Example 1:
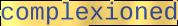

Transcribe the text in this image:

complexioned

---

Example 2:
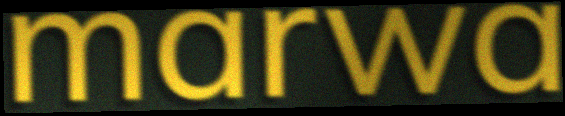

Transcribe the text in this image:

marwa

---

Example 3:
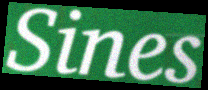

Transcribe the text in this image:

Sines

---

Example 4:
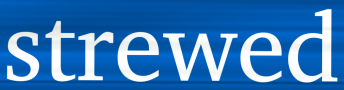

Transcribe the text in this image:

strewed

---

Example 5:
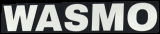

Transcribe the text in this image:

WASMO